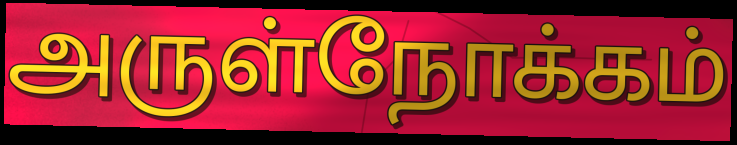
அருள்நோக்கம்